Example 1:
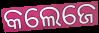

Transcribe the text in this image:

କଲେଜେ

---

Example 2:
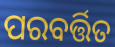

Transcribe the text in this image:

ପରବର୍ତ୍ତିତ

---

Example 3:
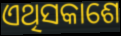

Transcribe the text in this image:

ଏଥିସକାଶେ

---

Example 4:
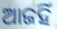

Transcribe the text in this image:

ଆଜହିଁ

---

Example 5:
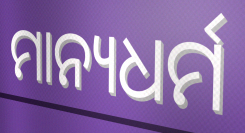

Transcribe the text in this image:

ମାନ୍ୟଧର୍ମ